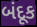
બંદૂક